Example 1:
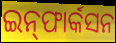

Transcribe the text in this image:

ଇନ୍‌ଫାର୍କସନ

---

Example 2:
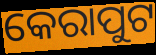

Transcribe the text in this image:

କେରାପୁଟ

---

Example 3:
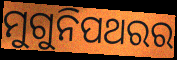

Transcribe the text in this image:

ମୁଗୁନିପଥରର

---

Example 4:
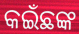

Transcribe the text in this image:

କଇଁଛଙ୍କ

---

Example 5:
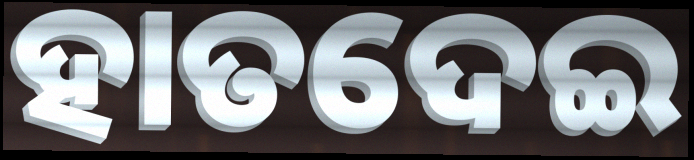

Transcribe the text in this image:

ହାତଦେଇ